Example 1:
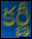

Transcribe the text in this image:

కర్ణీ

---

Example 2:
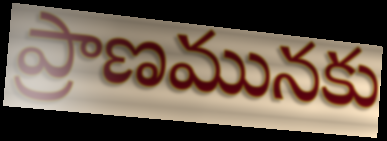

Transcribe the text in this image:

ప్రాణమునకు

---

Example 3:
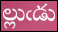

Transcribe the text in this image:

ల్లుఁడు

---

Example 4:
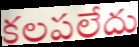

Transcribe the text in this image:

కలపలేదు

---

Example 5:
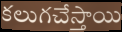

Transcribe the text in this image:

కలుగచేస్తాయి